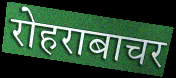
रोहराबाचर